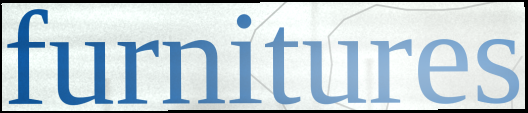
furnitures